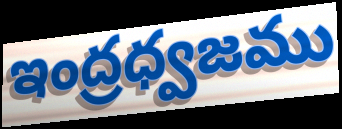
ఇంద్రధ్వజము